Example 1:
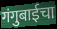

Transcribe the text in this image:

गंगुबाईचा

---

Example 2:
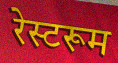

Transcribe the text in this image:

रेस्टरूम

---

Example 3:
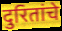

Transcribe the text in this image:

दुरितांचे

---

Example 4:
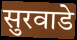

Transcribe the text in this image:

सुरवाडे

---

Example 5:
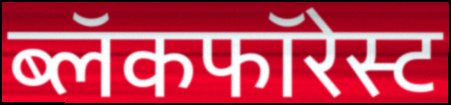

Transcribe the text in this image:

ब्लॅकफॉरेस्ट